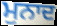
ਮੁਨਾਦ